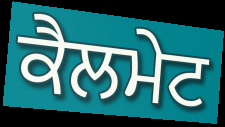
ਕੈਲਮੇਟ